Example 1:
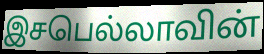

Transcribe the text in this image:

இசபெல்லாவின்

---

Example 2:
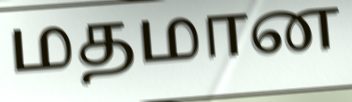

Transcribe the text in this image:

மதமான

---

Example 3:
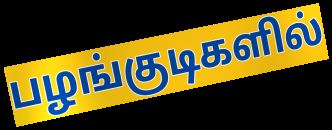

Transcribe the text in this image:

பழங்குடிகளில்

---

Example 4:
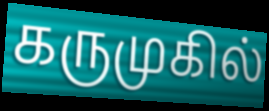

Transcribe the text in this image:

கருமுகில்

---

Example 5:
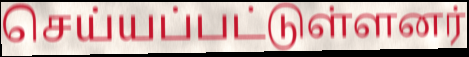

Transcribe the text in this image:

செய்யப்பட்டுள்ளனர்